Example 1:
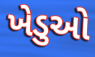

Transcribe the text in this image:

ખેડુઓ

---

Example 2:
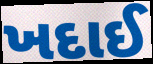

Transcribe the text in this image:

ખદાઈ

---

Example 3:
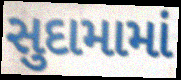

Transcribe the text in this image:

સુદામામાં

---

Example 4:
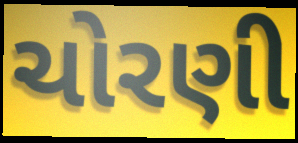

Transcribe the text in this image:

ચોરણી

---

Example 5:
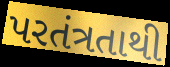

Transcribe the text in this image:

પરતંત્રતાથી